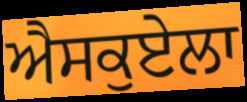
ਐਸਕੁਏਲਾ